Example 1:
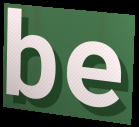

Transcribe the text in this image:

be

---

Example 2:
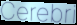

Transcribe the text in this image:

Cerebri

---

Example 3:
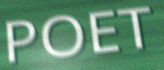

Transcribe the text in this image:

POET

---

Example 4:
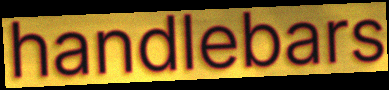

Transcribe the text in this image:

handlebars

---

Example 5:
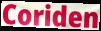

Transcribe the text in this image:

Coriden